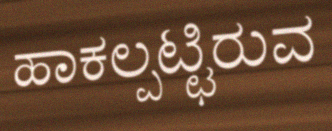
ಹಾಕಲ್ಪಟ್ಟಿರುವ